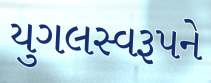
યુગલસ્વરૂપને